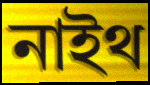
নাইথ